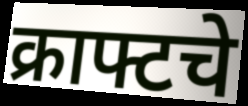
क्राफ्टचे